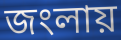
জংলায়